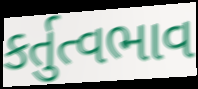
કર્તુત્વભાવ